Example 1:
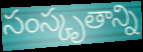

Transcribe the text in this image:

సంస్కృతాన్ని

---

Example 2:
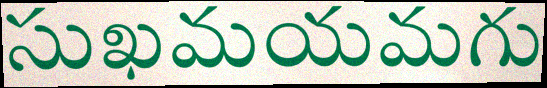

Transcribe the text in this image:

సుఖమయమగు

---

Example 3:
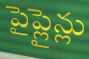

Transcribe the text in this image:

పైప్లైన్లు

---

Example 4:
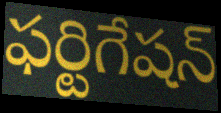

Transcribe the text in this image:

ఫర్టిగేషన్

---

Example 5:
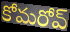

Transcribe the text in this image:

కోమరోవ్